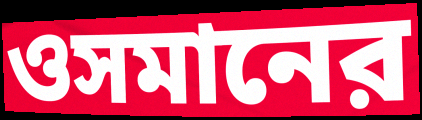
ওসমানের